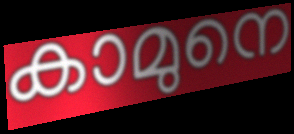
കാമുനെ